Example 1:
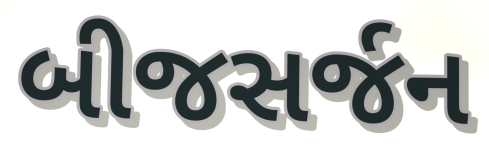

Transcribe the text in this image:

બીજસર્જન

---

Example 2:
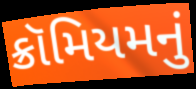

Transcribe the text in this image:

ક્રૉમિયમનું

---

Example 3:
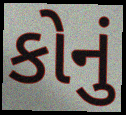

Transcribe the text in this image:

કોનું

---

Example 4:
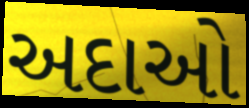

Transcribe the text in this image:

અદાઓ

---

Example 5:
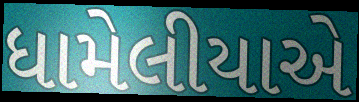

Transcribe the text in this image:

ધામેલીયાએ